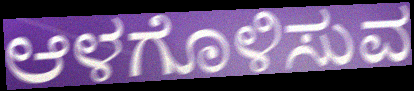
ಆಳಗೊಳಿಸುವ